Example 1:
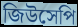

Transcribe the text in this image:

জিউসেপি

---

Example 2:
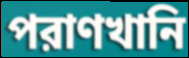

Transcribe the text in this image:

পরাণখানি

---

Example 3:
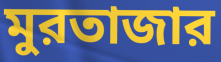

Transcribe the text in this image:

মুরতাজার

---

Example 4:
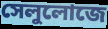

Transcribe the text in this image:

সেলুলোজে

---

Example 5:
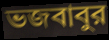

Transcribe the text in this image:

ভজবাবুর